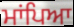
ਮਾਂਪਿਆ